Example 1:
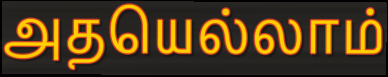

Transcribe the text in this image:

அதயெல்லாம்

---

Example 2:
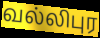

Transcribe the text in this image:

வல்லிபுர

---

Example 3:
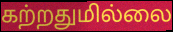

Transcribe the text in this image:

கற்றதுமில்லை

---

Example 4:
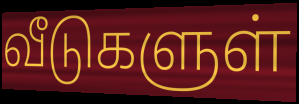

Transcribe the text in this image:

வீடுகளுள்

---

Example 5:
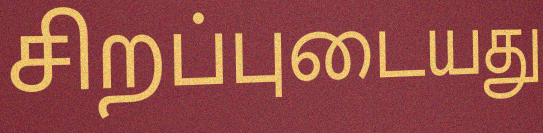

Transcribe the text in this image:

சிறப்புடையது